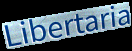
Libertaria